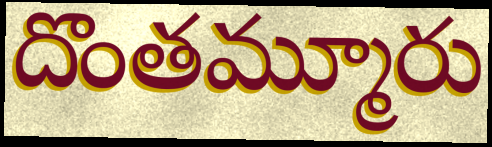
దొంతమ్మూరు